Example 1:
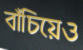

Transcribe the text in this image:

বাঁচিয়েও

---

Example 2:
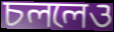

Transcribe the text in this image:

চললেও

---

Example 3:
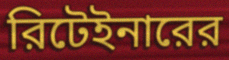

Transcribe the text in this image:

রিটেইনারের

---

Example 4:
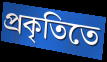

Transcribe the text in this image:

প্রকৃতিতে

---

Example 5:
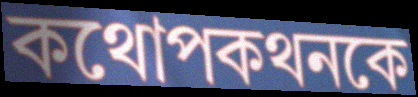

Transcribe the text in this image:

কথোপকথনকে